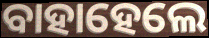
ବାହାହେଲେ